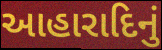
આહારાદિનું